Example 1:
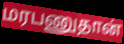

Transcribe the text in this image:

மரபணுதான்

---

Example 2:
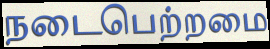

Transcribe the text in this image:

நடைபெற்றமை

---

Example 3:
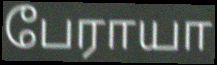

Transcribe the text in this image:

பேராயா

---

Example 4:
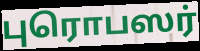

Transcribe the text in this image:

புரொபஸர்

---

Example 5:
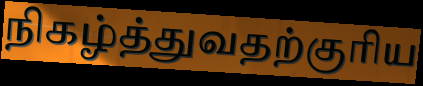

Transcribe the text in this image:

நிகழ்த்துவதற்குரிய